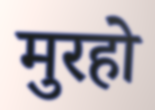
मुरहो